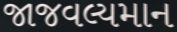
જાજવલ્યમાન